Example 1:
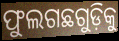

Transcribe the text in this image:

ଫୁଲଗଛଗୁଡ଼ିକୁ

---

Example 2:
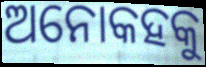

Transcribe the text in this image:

ଅନୋକହକୁ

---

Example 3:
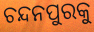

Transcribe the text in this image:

ଚନ୍ଦନପୁରକୁ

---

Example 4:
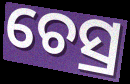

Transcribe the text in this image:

ଚେସ୍ର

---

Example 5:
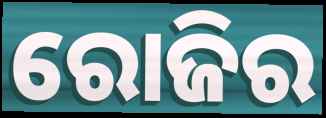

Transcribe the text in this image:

ରୋଜିର